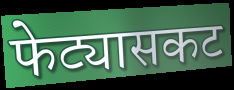
फेट्यासकट